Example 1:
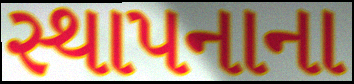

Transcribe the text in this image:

સ્થાપનાના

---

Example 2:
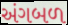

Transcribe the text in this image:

અંગબળ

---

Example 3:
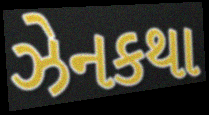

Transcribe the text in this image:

ઝેનકથા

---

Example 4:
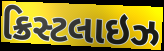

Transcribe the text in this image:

ક્રિસ્ટલાઇઝ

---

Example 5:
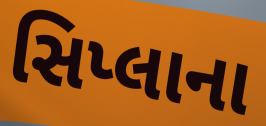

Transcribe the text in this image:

સિપ્લાના